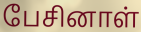
பேசினாள்